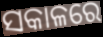
ସକାଳରେ